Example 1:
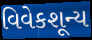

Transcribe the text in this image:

વિવેકશૂન્ય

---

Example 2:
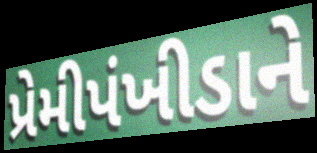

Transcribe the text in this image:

પ્રેમીપંખીડાને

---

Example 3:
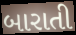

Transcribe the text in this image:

બારાતી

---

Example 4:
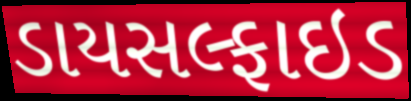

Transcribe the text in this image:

ડાયસલ્ફાઇડ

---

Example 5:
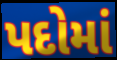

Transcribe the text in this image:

પદોમાં